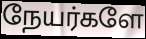
நேயர்களே